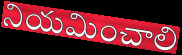
నియమించాలి